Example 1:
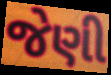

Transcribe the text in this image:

જેણી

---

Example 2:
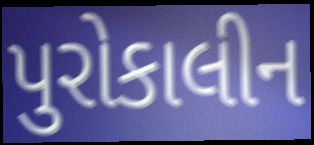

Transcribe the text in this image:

પુરોકાલીન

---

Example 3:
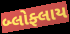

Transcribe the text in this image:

બ્લોફ્લાય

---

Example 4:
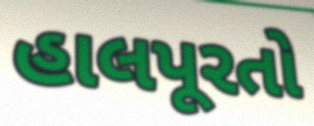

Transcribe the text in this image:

હાલપૂરતો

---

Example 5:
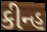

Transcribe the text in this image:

કીન્હ